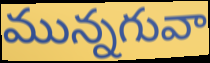
మున్నగువా